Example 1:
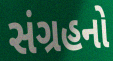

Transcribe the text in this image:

સંગ્રહનો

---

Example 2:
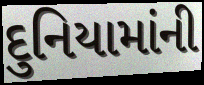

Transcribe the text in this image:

દુનિયામાંની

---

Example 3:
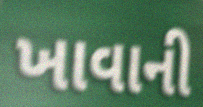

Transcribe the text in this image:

ખાવાની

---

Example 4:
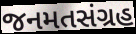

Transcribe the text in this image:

જનમતસંગ્રહ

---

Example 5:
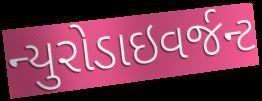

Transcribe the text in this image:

ન્યુરોડાઇવર્જન્ટ